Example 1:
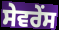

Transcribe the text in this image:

ਸੇਵਰੇਂਸ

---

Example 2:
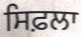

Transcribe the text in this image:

ਸਿਫ਼ਲਾ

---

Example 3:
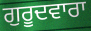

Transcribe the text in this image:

ਗੁਰੂਦਵਾਰਾ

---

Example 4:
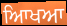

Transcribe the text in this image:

ਆਿਖਆ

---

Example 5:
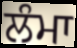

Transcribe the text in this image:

ਲੰਮਾ